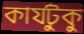
কার্যটুকু